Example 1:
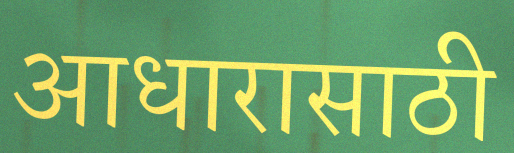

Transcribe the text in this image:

आधारासाठी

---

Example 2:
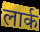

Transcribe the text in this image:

लार्क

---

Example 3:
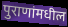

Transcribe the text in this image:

पुराणांमधील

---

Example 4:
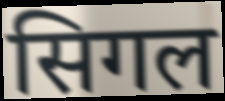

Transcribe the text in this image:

सिगल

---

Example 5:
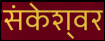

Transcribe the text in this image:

संकेश्वर